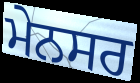
ਮੇਨਸਰ